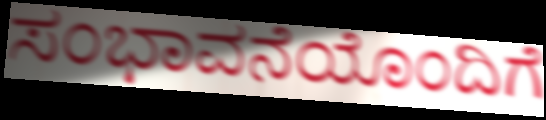
ಸಂಭಾವನೆಯೊಂದಿಗೆ